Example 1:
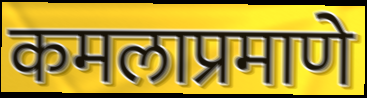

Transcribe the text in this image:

कमलाप्रमाणे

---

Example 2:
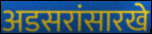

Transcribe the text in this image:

अडसरांसारखे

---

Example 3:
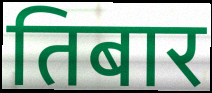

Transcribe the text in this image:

तिबार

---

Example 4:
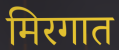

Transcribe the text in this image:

मिरगात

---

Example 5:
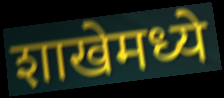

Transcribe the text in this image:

शाखेमध्ये